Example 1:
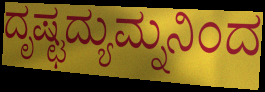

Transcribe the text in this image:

ದೃಷ್ಟದ್ಯುಮ್ನನಿಂದ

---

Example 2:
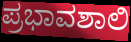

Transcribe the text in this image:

ಪ್ರಭಾವಶಾಲಿ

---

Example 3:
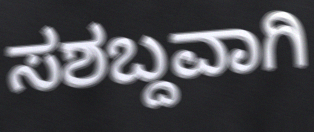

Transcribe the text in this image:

ಸಶಬ್ದವಾಗಿ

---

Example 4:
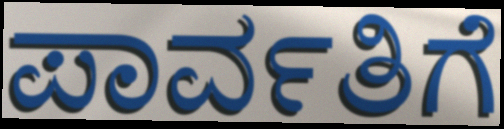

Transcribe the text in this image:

ಪಾರ್ವತಿಗೆ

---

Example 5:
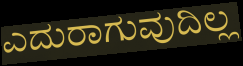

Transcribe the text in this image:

ಎದುರಾಗುವುದಿಲ್ಲ